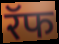
रॅफ